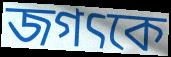
জগৎকে